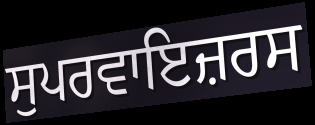
ਸੁਪਰਵਾਇਜ਼ਰਸ